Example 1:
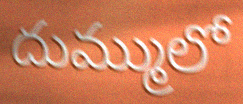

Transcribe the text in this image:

దుమ్ములో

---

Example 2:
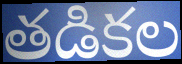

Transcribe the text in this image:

తడికల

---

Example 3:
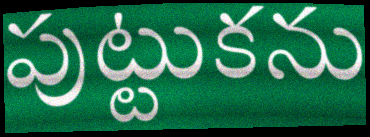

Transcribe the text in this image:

పుట్టుకను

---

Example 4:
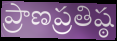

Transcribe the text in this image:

ప్రాణప్రతిష్ఠ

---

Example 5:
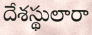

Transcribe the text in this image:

దేశస్థులారా